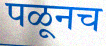
पळूनच